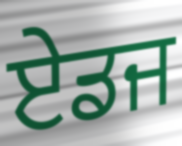
ਏਡਜ